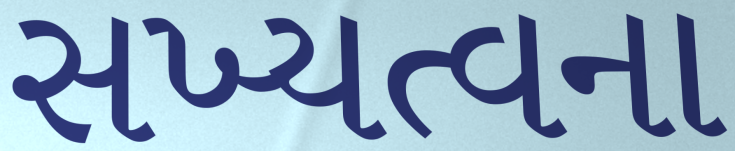
સખ્યત્વના